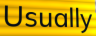
Usually